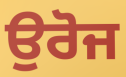
ਉਰੋਜ